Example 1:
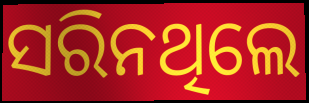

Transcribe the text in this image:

ସରିନଥିଲେ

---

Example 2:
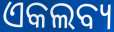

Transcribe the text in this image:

ଏକଲବ୍ୟ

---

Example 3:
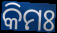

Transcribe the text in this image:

କିମଃ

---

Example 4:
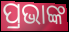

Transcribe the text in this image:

ପ୍ରଭାଙ୍କ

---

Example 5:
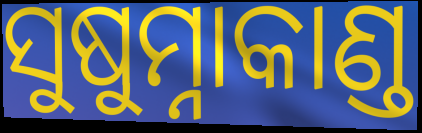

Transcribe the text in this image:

ସୁଷୁମ୍ନାକାଣ୍ଡ